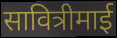
सावित्रीमाई